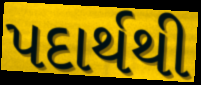
પદાર્થથી